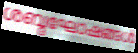
ശബ്ദഘോഷങ്ങൾ